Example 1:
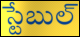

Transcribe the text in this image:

స్టేబుల్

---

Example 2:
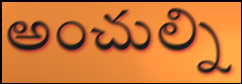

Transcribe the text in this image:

అంచుల్ని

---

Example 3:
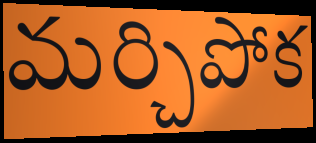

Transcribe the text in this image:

మర్చిపోక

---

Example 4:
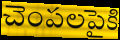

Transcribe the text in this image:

చెంపలపైకి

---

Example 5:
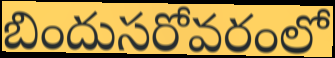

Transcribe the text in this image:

బిందుసరోవరంలో